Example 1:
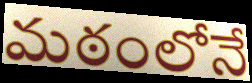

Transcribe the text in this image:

మఠంలోనే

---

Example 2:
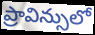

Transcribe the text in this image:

ప్రావిన్సులో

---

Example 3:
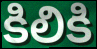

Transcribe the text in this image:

కిలికి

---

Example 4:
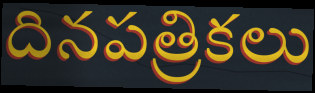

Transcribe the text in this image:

దినపత్రికలు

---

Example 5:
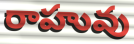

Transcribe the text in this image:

రాహువు